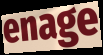
enage